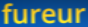
fureur